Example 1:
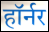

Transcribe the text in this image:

हॉर्नर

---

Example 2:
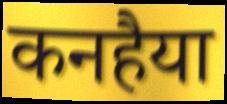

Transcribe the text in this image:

कनहैया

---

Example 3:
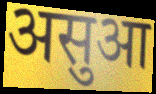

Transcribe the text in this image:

असुआ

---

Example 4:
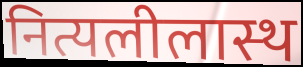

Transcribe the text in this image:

नित्यलीलास्थ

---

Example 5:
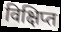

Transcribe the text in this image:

विक्षिप्त